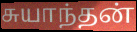
சுயாந்தன்